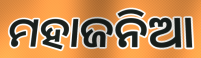
ମହାଜନିଆ